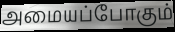
அமையப்போகும்